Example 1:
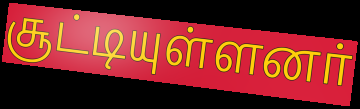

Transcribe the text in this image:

சூட்டியுள்ளனர்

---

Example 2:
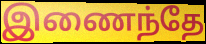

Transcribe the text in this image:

இணைந்தே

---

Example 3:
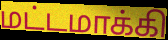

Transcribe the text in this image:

மட்டமாக்கி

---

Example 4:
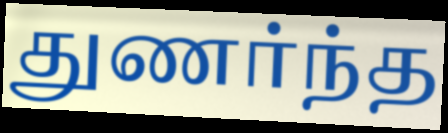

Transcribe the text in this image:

துணர்ந்த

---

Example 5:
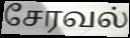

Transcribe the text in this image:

சேரவல்